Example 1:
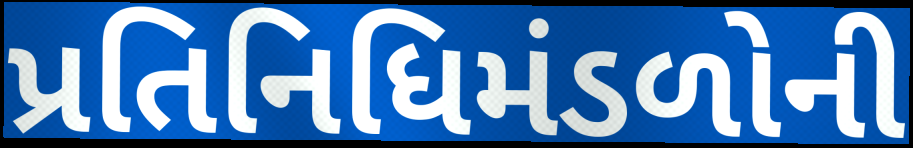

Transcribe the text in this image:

પ્રતિનિધિમંડળોની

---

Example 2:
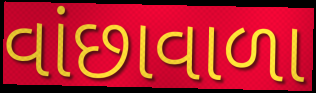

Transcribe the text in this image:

વાંછાવાળા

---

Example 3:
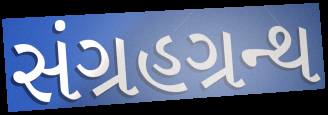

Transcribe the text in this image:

સંગ્રહગ્રન્થ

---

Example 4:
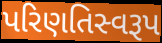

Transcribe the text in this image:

પરિણતિસ્વરૂપ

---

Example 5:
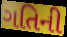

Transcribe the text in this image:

ગતિની